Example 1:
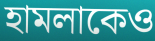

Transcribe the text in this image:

হামলাকেও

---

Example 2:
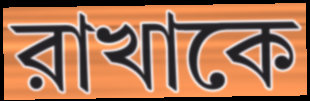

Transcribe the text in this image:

রাখাকে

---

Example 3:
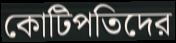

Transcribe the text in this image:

কোটিপতিদের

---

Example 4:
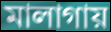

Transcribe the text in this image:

মালাগায়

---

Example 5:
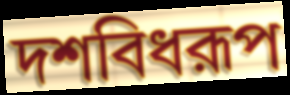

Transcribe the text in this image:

দশবিধরূপ